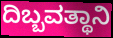
ದಿಬ್ಬವತ್ಥಾನಿ